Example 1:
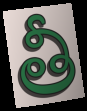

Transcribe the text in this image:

తీ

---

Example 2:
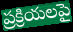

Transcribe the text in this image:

ప్రక్రియలపై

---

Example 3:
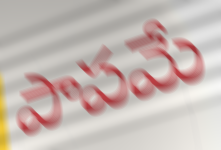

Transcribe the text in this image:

పాపమే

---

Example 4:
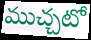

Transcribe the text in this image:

ముచ్చటో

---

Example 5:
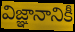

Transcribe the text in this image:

విజ్ఞానానికీ